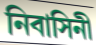
নিবাসিনী